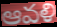
ఆవళి